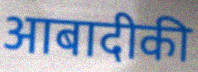
आबादीकी